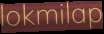
lokmilap